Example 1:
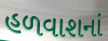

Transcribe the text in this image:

હળવાશનાં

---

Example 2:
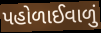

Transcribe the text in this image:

પહોળાઈવાળું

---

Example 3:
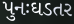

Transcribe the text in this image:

પુનઃઘડતર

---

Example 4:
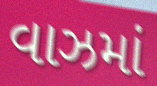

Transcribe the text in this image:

વાઝમાં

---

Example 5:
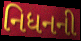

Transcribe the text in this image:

નિધનની